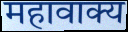
महावाक्य